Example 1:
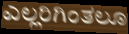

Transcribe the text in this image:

ಎಲ್ಲರಿಗಿಂತಲೂ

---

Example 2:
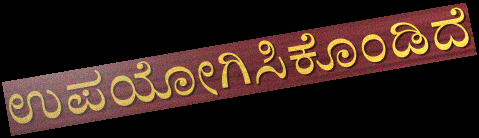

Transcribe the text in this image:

ಉಪಯೋಗಿಸಿಕೊಂಡಿದೆ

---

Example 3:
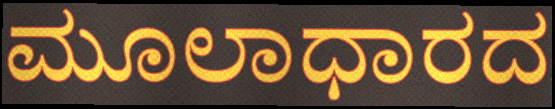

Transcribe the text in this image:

ಮೂಲಾಧಾರದ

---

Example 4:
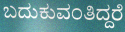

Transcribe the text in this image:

ಬದುಕುವಂತಿದ್ದರೆ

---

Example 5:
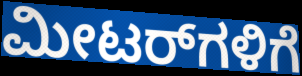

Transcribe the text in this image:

ಮೀಟರ್‌ಗಳಿಗೆ